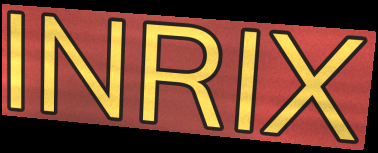
INRIX